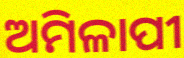
ଅମିଳାପୀ